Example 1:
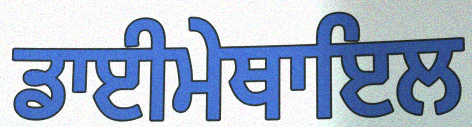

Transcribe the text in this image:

ਡਾਈਮੇਥਾਇਲ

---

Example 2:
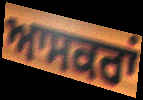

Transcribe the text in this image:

ਆਸਕਰਾਂ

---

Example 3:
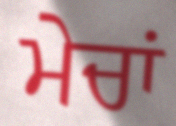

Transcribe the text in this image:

ਮੇਚਾਂ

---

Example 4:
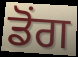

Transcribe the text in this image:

ਡੋਂਗ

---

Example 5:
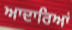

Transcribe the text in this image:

ਆਦਾਰਿਆਂ